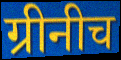
ग्रीनीच